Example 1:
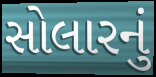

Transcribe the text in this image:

સોલારનું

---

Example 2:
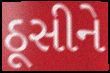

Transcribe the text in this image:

ઠૂસીને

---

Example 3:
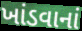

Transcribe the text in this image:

ખાંડવાનાં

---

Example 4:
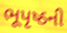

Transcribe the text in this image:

ભૂપૃષ્ઠની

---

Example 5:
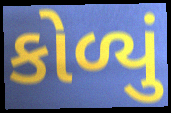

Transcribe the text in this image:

કોળ્યું